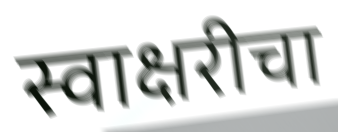
स्वाक्षरीचा